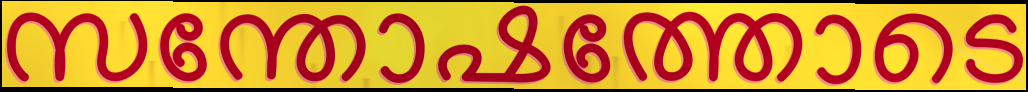
സന്തോഷത്തോടെ